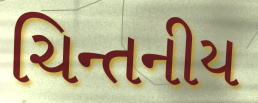
ચિન્તનીય